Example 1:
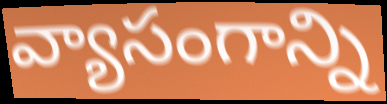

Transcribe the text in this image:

వ్యాసంగాన్ని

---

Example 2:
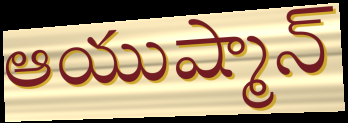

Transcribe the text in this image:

ఆయుష్మాన్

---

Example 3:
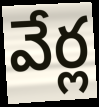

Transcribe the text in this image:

వేర్ల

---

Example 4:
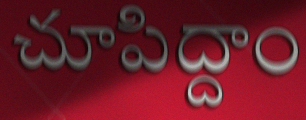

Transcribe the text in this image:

చూపిద్దాం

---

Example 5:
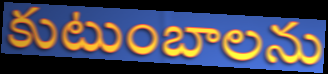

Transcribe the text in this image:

కుటుంబాలను